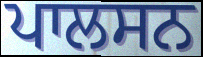
ਪਾਲਸਨ